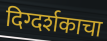
दिग्दर्शकाचा